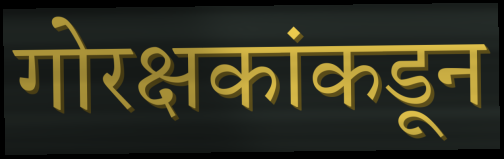
गोरक्षकांकडून